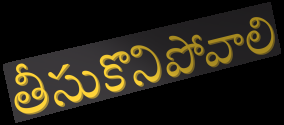
తీసుకొనిపోవాలి